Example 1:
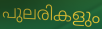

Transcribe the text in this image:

പുലരികളും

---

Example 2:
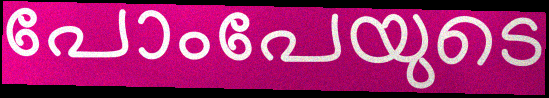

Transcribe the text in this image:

പോംപേയുടെ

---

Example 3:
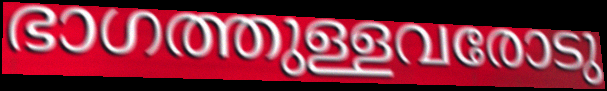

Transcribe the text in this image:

ഭാഗത്തുള്ളവരോടു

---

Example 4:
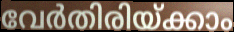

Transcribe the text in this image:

വേർതിരിയ്ക്കാം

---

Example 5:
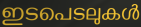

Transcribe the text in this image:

ഇടപെടലുകൾ